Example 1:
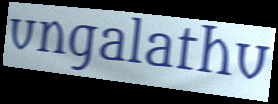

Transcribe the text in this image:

ungalathu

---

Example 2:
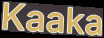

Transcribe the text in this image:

Kaaka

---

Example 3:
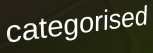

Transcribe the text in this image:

categorised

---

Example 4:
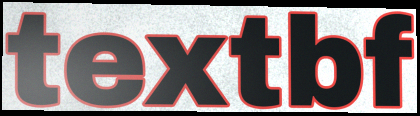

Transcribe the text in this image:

textbf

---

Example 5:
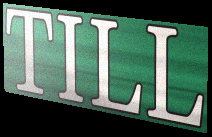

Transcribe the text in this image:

TILL